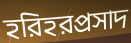
হরিহরপ্রসাদ